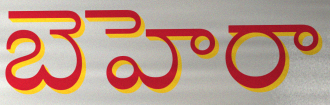
బెహెరా